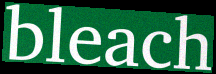
bleach